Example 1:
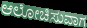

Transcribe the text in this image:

ಆಲೋಚಿಸುವಾಗ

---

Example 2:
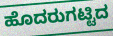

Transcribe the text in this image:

ಹೊದರುಗಟ್ಟಿದ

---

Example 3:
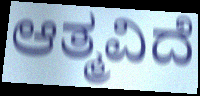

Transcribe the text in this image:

ಆತ್ಮವಿದೆ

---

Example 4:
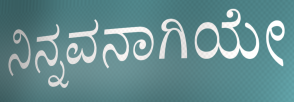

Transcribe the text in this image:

ನಿನ್ನವನಾಗಿಯೇ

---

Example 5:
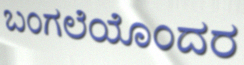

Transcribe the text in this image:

ಬಂಗಲೆಯೊಂದರ